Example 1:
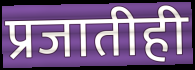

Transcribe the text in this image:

प्रजातीही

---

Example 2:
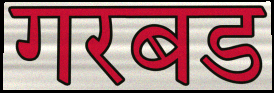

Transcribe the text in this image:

गरबड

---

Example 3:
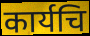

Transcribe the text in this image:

कार्यचि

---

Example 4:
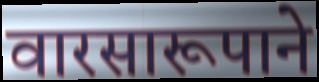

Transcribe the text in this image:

वारसारूपाने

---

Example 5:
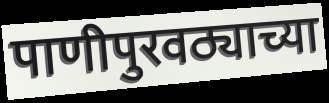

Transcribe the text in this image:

पाणीपुरवठ्याच्या